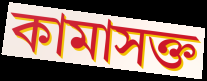
কামাসক্ত